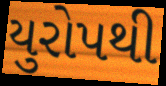
યુરોપથી